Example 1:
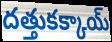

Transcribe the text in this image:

దత్తుకక్కాయ్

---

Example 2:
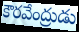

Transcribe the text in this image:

కౌరవేంద్రుడు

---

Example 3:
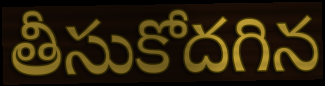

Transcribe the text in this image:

తీసుకోదగిన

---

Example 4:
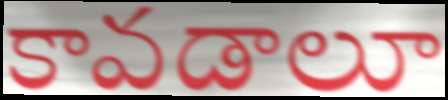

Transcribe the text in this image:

కావడాలూ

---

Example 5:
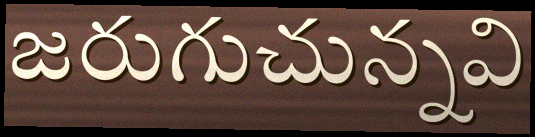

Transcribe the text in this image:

జరుగుచున్నవి